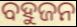
ବହୁଜନ